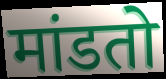
मांडतो